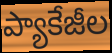
ప్యాకేజీల